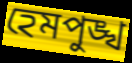
হেমপুঙ্খ